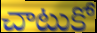
చాటుకో